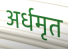
अर्धमृत